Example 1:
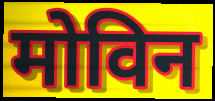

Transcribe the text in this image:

मोविन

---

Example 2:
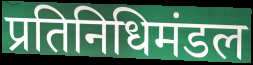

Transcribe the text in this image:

प्रतिनिधिमंडल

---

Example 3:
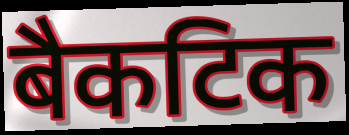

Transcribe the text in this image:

बैकटिक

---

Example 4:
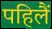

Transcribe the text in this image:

पहिलैं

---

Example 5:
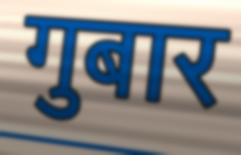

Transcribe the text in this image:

गुबार